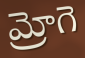
మ్రోగె